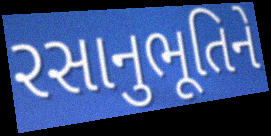
રસાનુભૂતિને